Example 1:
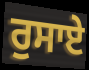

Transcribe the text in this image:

ਰੁਸਾਏ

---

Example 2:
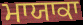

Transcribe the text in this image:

ਮਾਯਾਕਾ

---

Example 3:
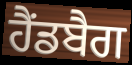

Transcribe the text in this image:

ਹੈਂਡਬੈਗ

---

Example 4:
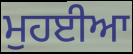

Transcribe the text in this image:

ਮੁਹਈਆ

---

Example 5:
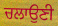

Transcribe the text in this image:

ਚਲਾਉਣੀ